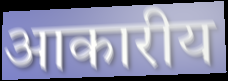
आकारीय